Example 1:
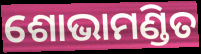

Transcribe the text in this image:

ଶୋଭାମଣ୍ଡିତ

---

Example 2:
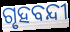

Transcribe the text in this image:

ଗୃହବନ୍ଦୀ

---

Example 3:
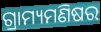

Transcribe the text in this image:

ଗ୍ରାମ୍ୟମଣିଷର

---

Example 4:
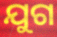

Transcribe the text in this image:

ଯୁଗ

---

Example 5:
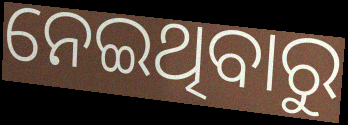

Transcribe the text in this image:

ନେଇଥିବାରୁ